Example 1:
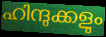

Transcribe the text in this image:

ഹിന്ദുക്കളും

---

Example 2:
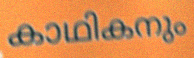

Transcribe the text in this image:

കാഥികനും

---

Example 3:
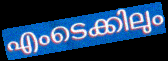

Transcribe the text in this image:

എംടെക്കിലും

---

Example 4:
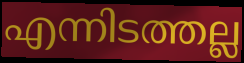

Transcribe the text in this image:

എന്നിടത്തല്ല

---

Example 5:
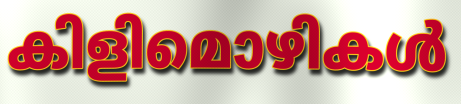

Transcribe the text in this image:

കിളിമൊഴികൾ